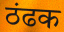
ठंढक